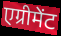
एग्रीमेंट